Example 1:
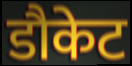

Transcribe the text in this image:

डौकेट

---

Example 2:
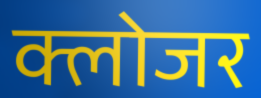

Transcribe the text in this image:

क्लोजर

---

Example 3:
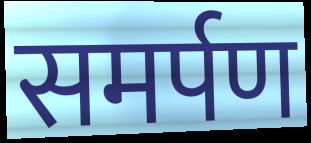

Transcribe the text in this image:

समर्पण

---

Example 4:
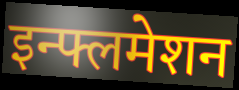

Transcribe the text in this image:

इन्फ्लमेशन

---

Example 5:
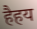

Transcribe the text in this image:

हैहय